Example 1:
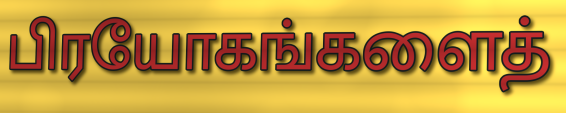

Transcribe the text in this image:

பிரயோகங்களைத்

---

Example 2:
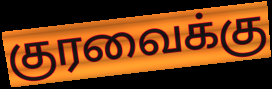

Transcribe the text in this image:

குரவைக்கு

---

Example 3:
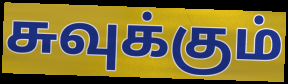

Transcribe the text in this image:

சுவுக்கும்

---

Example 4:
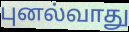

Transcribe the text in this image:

புனல்வாது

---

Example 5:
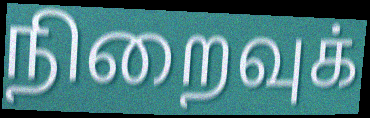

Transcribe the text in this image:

நிறைவுக்